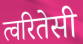
त्वरितेसी